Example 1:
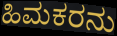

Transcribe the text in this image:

ಹಿಮಕರನು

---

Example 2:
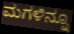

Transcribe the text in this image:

ಮಗಳಿನ್ನೂ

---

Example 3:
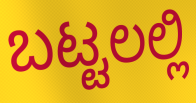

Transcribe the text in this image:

ಬಟ್ಟಲಲ್ಲಿ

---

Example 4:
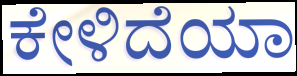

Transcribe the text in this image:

ಕೇಳಿದೆಯಾ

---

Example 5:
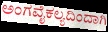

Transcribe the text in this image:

ಅಂಗವೈಕಲ್ಯದಿಂದಾಗಿ